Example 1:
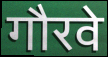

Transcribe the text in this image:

गौरवे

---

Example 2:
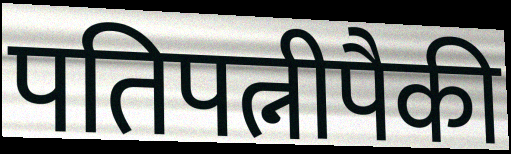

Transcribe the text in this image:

पतिपत्नीपैकी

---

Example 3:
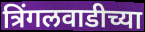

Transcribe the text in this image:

त्रिंगलवाडीच्या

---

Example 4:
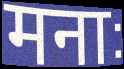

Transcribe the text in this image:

मनाः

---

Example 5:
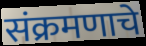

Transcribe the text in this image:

संक्रमणाचे